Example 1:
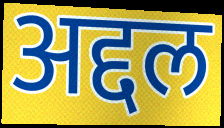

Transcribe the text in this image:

अद्दल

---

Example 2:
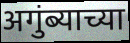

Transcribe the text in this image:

अगुंब्याच्या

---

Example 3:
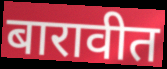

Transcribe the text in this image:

बारावीत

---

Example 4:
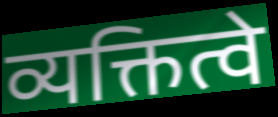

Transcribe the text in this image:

व्यक्तित्वे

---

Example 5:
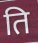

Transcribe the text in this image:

ति